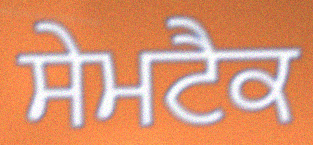
ਸੇਮਟੈਕ